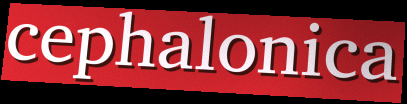
cephalonica